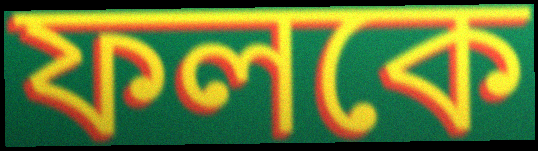
ফলকে